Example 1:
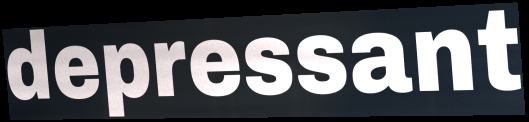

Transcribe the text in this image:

depressant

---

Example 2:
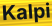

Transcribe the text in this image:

Kalpi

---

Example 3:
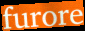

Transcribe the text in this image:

furore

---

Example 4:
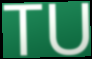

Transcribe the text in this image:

TU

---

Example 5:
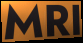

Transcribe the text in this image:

MRI